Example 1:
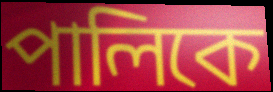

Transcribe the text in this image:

পালিকে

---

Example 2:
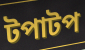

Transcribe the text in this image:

টপাটপ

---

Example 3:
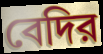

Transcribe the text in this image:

বেদির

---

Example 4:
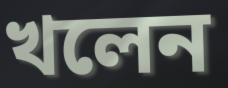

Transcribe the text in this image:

খলেন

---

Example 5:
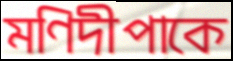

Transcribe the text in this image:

মণিদীপাকে